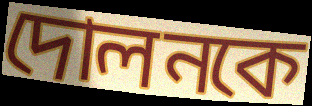
দোলনকে